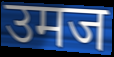
उमज